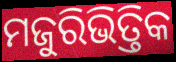
ମଜୁରିଭିତ୍ତିକ